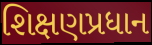
શિક્ષણપ્રધાન